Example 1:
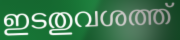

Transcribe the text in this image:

ഇടതുവശത്ത്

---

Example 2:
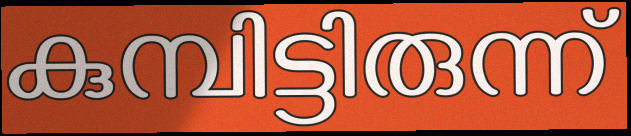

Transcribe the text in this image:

കുമ്പിട്ടിരുന്ന്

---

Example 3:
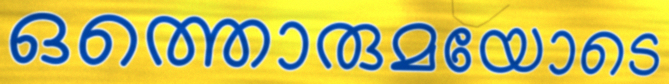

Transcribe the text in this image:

ഒത്തൊരുമയോടെ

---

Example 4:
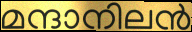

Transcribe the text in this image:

മന്ദാനിലൻ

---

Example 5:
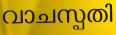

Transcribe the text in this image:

വാചസ്പതി